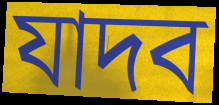
যাদব